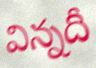
విన్నదీ